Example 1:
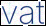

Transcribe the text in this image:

vat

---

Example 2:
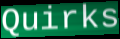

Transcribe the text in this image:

Quirks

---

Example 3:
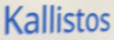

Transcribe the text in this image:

Kallistos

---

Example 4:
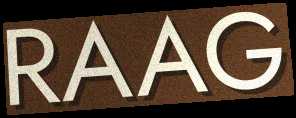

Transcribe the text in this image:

RAAG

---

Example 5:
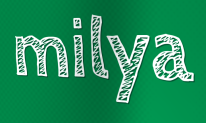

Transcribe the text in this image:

milya